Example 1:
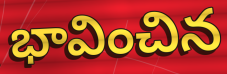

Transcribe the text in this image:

భావించిన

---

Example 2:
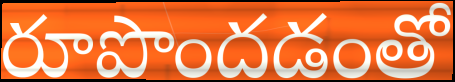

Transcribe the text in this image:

రూపొందడంతో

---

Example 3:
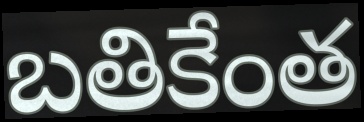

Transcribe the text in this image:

బతికేంత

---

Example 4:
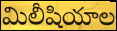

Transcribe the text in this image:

మిలీషియాల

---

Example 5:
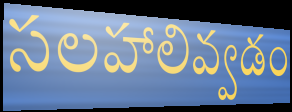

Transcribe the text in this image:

సలహాలివ్వడం